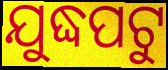
ଯୁଦ୍ଧପଟୁ